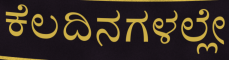
ಕೆಲದಿನಗಳಲ್ಲೇ